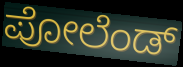
ಪೋಲೆಂಡ್